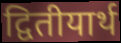
द्वितीयार्थ